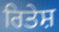
ਰਿਤੇਸ਼